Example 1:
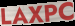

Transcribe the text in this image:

LAXPC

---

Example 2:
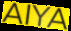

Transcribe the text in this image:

AIYA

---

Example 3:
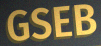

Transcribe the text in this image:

GSEB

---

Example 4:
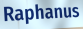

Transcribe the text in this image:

Raphanus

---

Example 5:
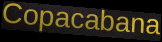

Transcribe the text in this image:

Copacabana